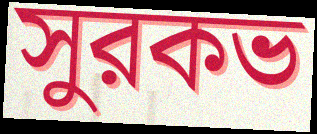
সুরকভ